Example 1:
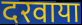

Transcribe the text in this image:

दरवाया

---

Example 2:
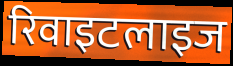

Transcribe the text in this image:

रिवाइटलाइज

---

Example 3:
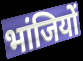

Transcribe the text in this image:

भांजियों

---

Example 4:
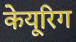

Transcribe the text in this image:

केयूरिग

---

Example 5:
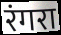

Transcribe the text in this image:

रंगरा